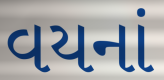
વયનાં